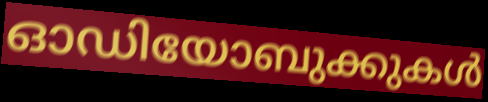
ഓഡിയോബുക്കുകൾ